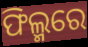
ଫିଲ୍ମରେ